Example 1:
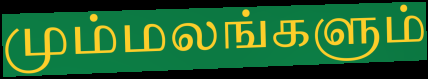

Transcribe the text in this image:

மும்மலங்களும்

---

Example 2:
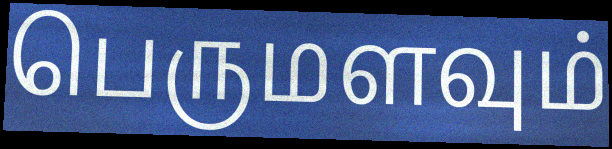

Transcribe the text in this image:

பெருமளவும்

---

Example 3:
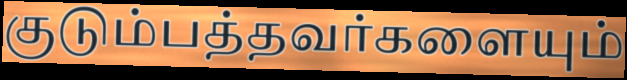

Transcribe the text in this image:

குடும்பத்தவர்களையும்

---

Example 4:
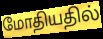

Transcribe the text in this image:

மோதியதில்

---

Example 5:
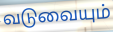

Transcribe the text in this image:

வடுவையும்